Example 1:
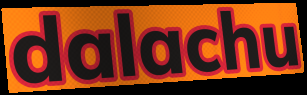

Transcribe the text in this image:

dalachu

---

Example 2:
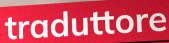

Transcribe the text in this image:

traduttore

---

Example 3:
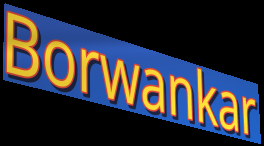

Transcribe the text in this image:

Borwankar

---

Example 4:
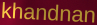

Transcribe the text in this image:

khandnan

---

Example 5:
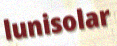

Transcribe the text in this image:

lunisolar